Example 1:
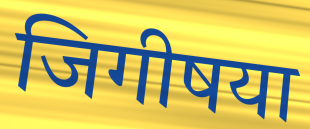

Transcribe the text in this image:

जिगीषया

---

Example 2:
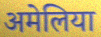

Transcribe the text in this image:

अमेलिया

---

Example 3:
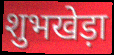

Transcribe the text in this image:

शुभखेड़ा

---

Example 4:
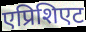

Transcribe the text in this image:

एप्रिशिएट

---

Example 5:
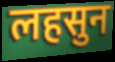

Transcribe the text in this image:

लहसुन